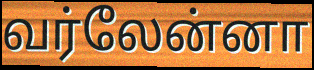
வர்லேன்னா